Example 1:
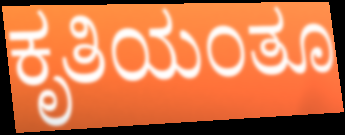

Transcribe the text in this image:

ಕೃತಿಯಂತೂ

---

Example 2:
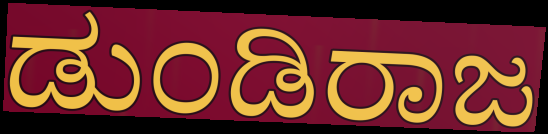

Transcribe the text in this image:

ಡುಂಡಿರಾಜ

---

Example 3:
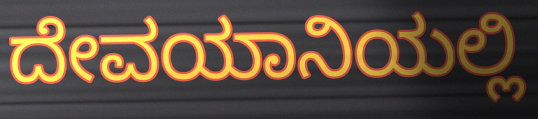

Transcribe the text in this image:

ದೇವಯಾನಿಯಲ್ಲಿ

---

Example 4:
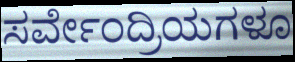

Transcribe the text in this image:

ಸರ್ವೇಂದ್ರಿಯಗಳೂ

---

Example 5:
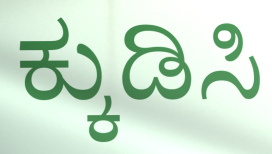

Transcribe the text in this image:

ಕ್ಕುಡಿಸಿ